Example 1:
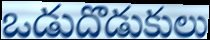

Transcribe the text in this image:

ఒడుదొడుకులు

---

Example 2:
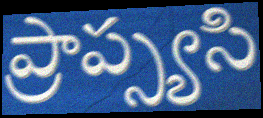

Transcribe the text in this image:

ప్రాప్స్యసి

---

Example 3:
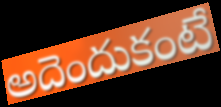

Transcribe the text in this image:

అదెందుకంటే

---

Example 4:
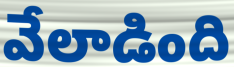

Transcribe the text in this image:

వేలాడింది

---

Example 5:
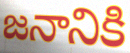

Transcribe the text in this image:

జనానికి